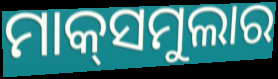
ମାକ୍‌ସମୁଲାର